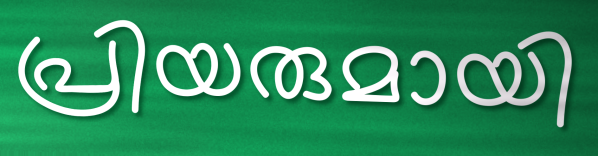
പ്രിയരുമായി